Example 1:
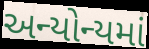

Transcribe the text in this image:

અન્યોન્યમાં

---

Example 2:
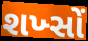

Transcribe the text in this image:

શખ્સોં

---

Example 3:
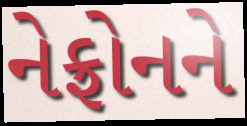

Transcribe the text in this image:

નેફ્રોનને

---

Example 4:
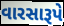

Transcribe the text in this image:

વારસારૂપે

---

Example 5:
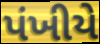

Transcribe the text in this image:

પંખીયે